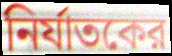
নির্যাতকের